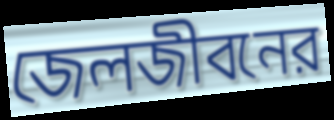
জেলজীবনের